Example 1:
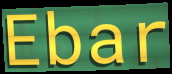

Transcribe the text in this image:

Ebar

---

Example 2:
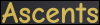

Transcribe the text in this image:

Ascents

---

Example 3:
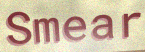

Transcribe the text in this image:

Smear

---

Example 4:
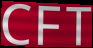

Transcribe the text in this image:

CFT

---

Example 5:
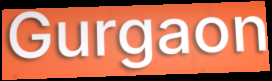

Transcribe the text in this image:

Gurgaon